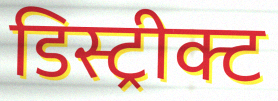
डिस्ट्रीक्ट